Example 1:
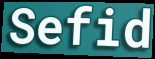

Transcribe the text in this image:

Sefid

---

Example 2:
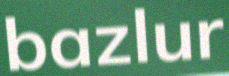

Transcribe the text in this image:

bazlur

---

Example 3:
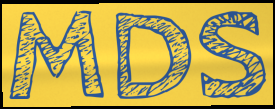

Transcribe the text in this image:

MDS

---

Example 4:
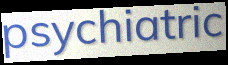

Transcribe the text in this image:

psychiatric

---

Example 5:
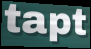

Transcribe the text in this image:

tapt